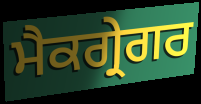
ਮੈਕਗ੍ਰੇਗਰ